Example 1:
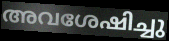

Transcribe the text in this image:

അവശേഷിച്ചു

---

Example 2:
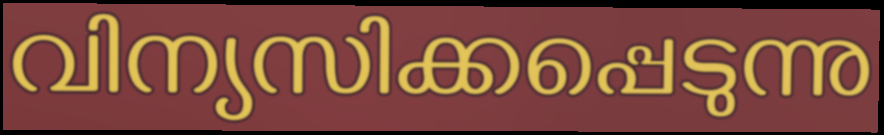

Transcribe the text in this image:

വിന്യസിക്കപ്പെടുന്നു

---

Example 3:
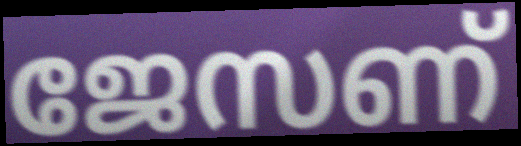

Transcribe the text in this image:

ജേസണ്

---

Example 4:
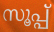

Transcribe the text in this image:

സൂപ്പ്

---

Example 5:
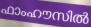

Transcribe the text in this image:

ഫാംഹൗസിൽ